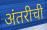
अंतरीची